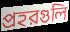
প্রহরগুলি